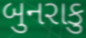
બુનરાકુ